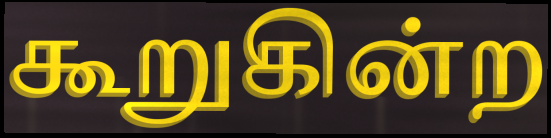
கூறுகின்ற